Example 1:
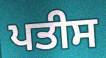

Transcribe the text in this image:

ਪਤੀਸ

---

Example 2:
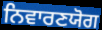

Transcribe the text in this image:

ਨਿਵਾਰਣਯੋਗ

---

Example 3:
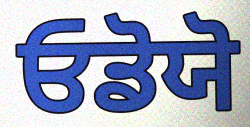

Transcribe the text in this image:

ਓਡੋਯੋ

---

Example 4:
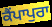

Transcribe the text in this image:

ਕੈਂਪਾਪੁਰਾ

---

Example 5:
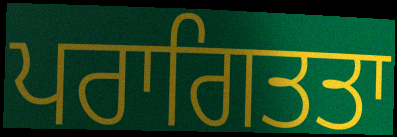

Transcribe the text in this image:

ਪਰਾਗਿਤਤਾ